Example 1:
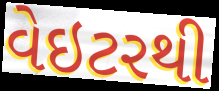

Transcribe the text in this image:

વેઇટરથી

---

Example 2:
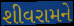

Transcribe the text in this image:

શીવરામને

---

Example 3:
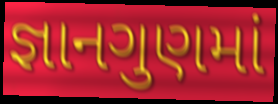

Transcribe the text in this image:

જ્ઞાનગુણમાં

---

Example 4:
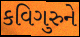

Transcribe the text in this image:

કવિગુરુને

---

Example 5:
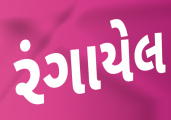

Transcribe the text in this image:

રંગાયેલ